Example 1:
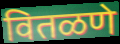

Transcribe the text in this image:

वितळणे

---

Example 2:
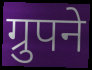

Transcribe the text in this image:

ग्रुपने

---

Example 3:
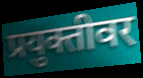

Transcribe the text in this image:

प्रयुक्तीवर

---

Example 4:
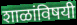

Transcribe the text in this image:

शाळांविषयी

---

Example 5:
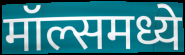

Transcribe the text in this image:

मॉल्समध्ये